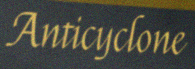
Anticyclone